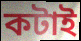
কটাই